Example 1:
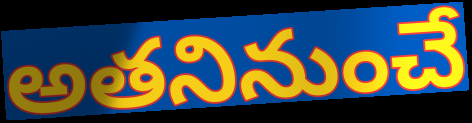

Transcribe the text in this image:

అతనినుంచే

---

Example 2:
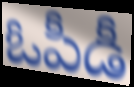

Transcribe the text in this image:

ఓపీడీ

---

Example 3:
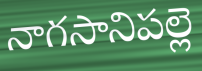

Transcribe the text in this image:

నాగసానిపల్లె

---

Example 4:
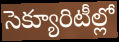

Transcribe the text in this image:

సెక్యూరిటీల్లో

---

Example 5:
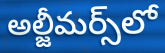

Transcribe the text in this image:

అల్జీమర్స్‌లో